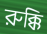
রুক্কি